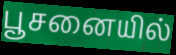
பூசனையில்